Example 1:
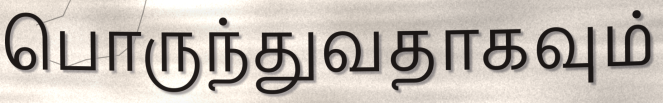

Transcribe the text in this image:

பொருந்துவதாகவும்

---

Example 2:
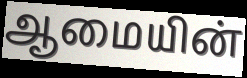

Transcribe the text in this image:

ஆமையின்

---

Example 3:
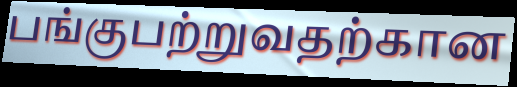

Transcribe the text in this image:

பங்குபற்றுவதற்கான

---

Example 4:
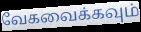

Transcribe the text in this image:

வேகவைக்கவும்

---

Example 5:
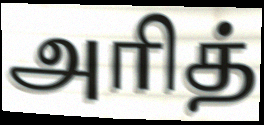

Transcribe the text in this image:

அரித்